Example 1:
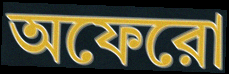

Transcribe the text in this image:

অফেরো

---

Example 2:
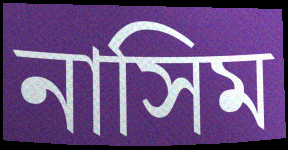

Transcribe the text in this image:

নাসিম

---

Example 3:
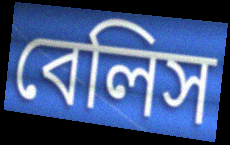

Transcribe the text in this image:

বেলিস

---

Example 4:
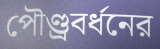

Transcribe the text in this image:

পৌণ্ড্রবর্ধনের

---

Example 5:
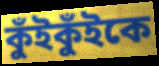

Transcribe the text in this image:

কুঁইকুঁইকে